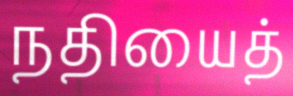
நதியைத்